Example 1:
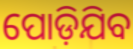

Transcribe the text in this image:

ପୋଡ଼ିଯିବ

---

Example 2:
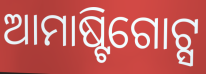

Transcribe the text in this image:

ଆମାଷ୍ଟିଗୋଟ୍ସ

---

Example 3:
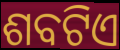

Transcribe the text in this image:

ଶବଟିଏ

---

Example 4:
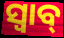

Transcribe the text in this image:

ସ୍ବାବ୍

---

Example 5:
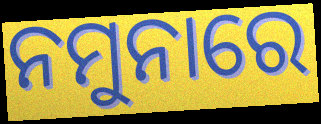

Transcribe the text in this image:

ନମୁନାରେ